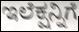
ಇಲೆಕ್ಷನ್ನಿಗೆ